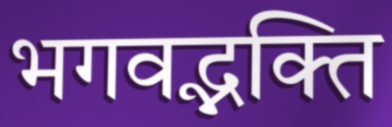
भगवद्भक्ति